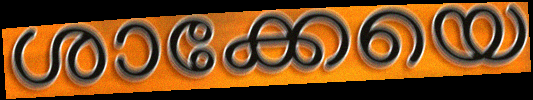
ശാക്കേയെ